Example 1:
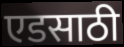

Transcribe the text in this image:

एडसाठी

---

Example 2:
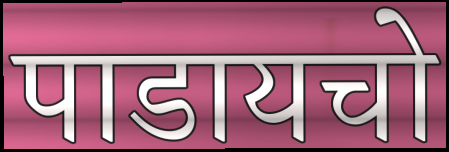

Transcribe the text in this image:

पाडायचो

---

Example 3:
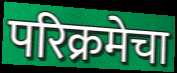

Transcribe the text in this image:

परिक्रमेचा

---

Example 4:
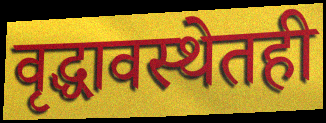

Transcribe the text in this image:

वृद्धावस्थेतही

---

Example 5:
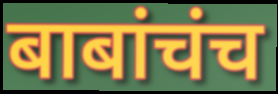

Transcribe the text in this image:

बाबांचंच